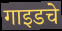
गाइडचे